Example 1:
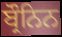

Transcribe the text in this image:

ਬ੍ਰੌਨਿਨ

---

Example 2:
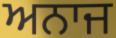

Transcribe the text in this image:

ਅਨਾਜ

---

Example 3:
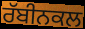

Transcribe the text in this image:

ਰੱਬੀਨਕਲ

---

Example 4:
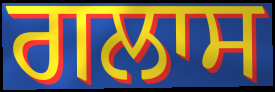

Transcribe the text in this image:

ਗਲਾਸ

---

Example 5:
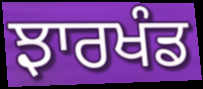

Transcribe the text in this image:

ਝਾਰਖੰਡ